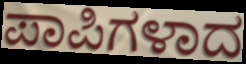
ಪಾಪಿಗಳಾದ